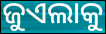
ଜୁଏଲାକୁ